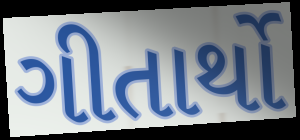
ગીતાર્થો